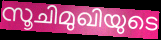
സൂചിമുഖിയുടെ